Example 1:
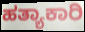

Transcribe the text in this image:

ಹತ್ಯಾಕಾರಿ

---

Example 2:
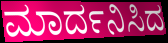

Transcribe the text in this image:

ಮಾರ್ದನಿಸಿದ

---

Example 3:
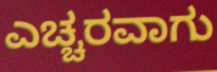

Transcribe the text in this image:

ಎಚ್ಚರವಾಗು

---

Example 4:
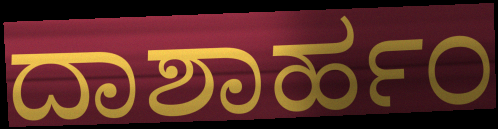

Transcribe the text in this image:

ದಾಶಾರ್ಹಂ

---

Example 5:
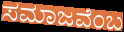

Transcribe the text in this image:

ಸಮಾಜವೆಂಬ